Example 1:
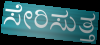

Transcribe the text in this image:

ಸೇರಿಸುತ್ತ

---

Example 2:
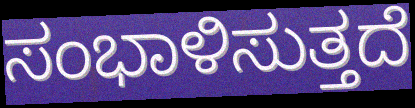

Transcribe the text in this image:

ಸಂಭಾಳಿಸುತ್ತದೆ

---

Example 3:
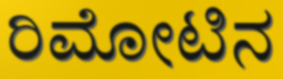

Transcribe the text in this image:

ರಿಮೋಟಿನ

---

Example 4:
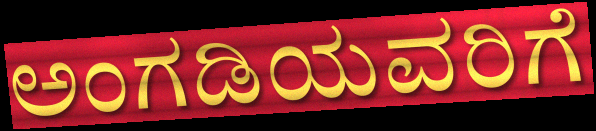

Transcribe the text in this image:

ಅಂಗಡಿಯವರಿಗೆ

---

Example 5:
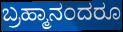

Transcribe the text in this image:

ಬ್ರಹ್ಮಾನಂದರೂ